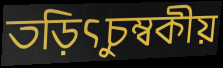
তড়িৎচুম্বকীয়